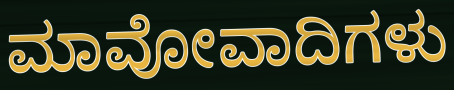
ಮಾವೋವಾದಿಗಳು